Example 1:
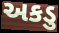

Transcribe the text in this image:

અકડુ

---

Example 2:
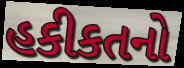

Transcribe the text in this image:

હકીકતનો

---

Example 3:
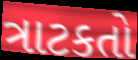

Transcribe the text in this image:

ત્રાટકતો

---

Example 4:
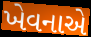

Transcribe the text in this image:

ખેવનાએ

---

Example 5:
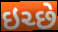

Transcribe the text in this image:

ઇચ્છે